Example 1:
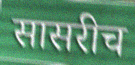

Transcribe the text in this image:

सासरीच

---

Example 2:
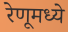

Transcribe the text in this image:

रेणूमध्ये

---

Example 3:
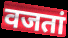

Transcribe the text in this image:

वजतां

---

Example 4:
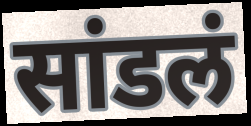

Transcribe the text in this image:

सांडलं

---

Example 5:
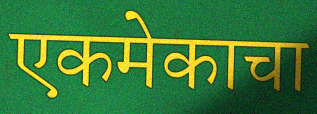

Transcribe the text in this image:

एकमेकाचा